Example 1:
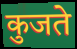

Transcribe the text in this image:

कुजते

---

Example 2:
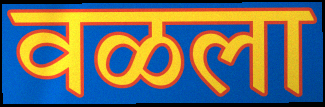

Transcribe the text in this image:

वळला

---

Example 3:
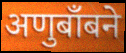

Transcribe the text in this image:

अणुबाँबने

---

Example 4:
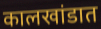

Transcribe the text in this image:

कालखांडात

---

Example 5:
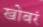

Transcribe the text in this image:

खोबरं